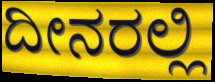
ದೀನರಲ್ಲಿ